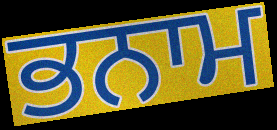
ਭਨਾਮ